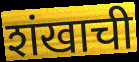
शंखाची